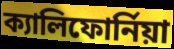
ক্যালিফোর্নিয়া